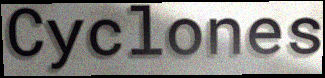
Cyclones